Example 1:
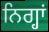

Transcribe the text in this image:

ਨਿਗ੍ਹਾਂ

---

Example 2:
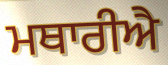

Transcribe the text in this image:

ਮਥਾਰੀਐ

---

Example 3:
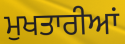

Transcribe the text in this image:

ਮੁਖਤਾਰੀਆਂ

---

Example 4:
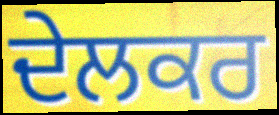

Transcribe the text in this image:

ਦੇਲਕਰ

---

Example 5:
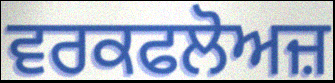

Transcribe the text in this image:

ਵਰਕਫਲੋਅਜ਼